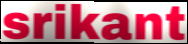
srikant